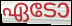
ഏടോ